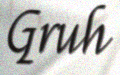
Gruh